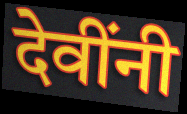
देवींनी